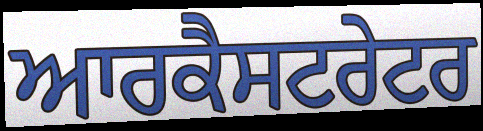
ਆਰਕੈਸਟਰੇਟਰ